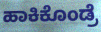
ಹಾಕಿಕೊಂಡ್ರೆ